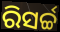
ରିସର୍ଚ୍ଚ